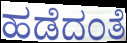
ಹಡೆದಂತೆ